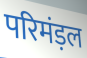
परिमंड़ल